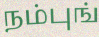
நம்புங்